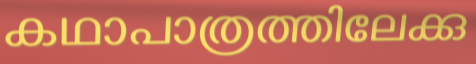
കഥാപാത്രത്തിലേക്കു